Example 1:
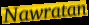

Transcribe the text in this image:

Nawratan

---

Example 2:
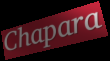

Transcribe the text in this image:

Chapara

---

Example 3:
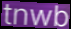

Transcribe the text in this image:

tnwb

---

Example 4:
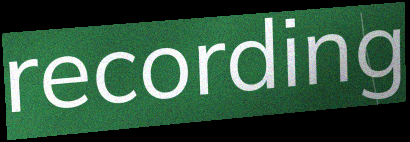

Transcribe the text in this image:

recording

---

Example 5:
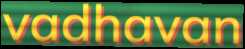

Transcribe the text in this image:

vadhavan